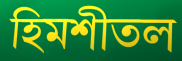
হিমশীতল